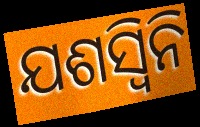
ଯଶସ୍ୱିନି